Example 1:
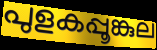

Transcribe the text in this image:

പുളകപ്പൂങ്കുല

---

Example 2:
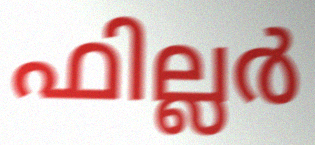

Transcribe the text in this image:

ഫില്ലർ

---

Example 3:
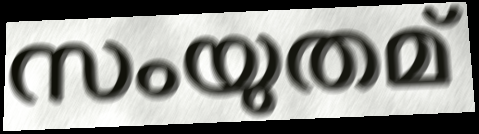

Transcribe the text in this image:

സംയുതമ്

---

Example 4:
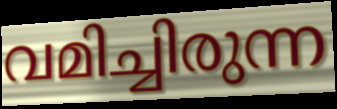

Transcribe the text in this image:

വമിച്ചിരുന്ന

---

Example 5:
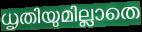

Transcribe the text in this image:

ധൃതിയുമില്ലാതെ